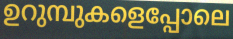
ഉറുമ്പുകളെപ്പോലെ